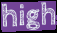
high